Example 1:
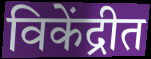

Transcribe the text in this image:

विकेंद्रीत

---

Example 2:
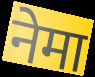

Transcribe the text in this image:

नेमा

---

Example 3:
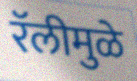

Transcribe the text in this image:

रॅलीमुळे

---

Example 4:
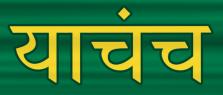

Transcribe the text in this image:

याचंच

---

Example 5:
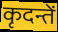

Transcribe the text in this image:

कृदन्तें